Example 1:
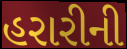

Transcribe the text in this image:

હરારીની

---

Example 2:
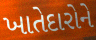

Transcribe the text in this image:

ખાતેદારોને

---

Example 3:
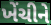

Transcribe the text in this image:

ખેંચીને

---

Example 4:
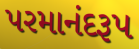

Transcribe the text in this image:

પરમાનંદરૂપ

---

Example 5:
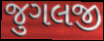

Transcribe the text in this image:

જુગલજી